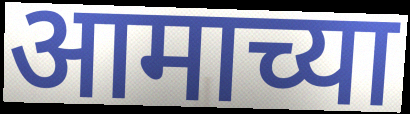
आमाच्या